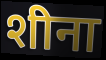
शीना